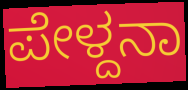
ಪೇಳ್ದನಾ